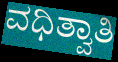
ವಧಿತ್ವಾತಿ